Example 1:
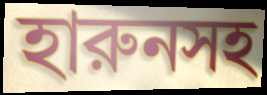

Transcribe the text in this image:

হারুনসহ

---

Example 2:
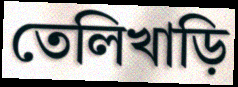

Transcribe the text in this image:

তেলিখাড়ি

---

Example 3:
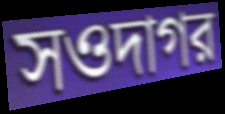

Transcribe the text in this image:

সওদাগর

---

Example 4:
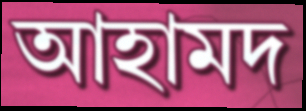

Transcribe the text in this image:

আহামদ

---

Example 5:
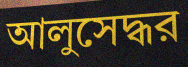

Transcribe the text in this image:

আলুসেদ্ধর